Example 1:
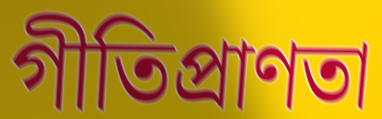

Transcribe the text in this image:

গীতিপ্রাণতা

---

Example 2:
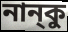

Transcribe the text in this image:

নান্‌কু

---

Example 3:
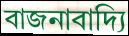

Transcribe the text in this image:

বাজনাবাদ্যি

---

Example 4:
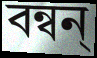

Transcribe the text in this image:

বন্বন্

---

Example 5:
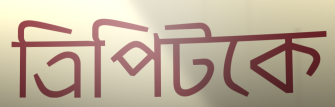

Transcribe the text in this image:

ত্রিপিটকে